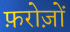
फ़रोज़ों